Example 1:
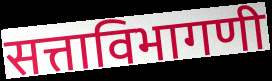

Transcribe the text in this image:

सत्ताविभागणी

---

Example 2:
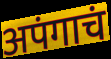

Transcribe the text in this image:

अपंगाचं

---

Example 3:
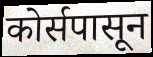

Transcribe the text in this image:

कोर्सपासून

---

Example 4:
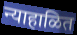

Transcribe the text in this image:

न्याहाळित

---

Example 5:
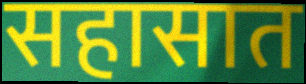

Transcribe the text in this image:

सहासात